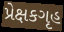
પ્રેક્ષકગૃહ